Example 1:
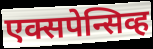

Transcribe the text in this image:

एक्सपेन्सिव्ह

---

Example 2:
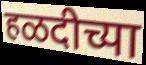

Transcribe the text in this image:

हळदीच्या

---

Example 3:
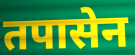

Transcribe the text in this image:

तपासेन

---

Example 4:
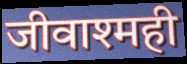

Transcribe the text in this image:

जीवाश्मही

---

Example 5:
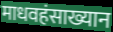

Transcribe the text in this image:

माधवहंसाख्यान